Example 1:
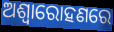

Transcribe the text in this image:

ଅଶ୍ୱାରୋହଣରେ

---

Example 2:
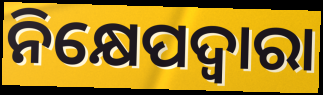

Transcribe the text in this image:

ନିକ୍ଷେପଦ୍ୱାରା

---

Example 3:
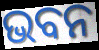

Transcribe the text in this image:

ଭବନ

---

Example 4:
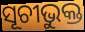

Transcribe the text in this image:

ସୂଚୀଭୁକ୍ତ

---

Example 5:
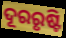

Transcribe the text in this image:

ଦୂରରୃଷ୍ଟି